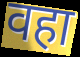
वहा